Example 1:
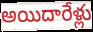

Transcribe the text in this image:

అయిదారేళ్లు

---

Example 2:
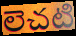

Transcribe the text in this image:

లెచటి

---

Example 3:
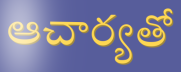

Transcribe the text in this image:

ఆచార్యతో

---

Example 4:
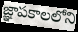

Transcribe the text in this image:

జ్ఞాపకాలలోని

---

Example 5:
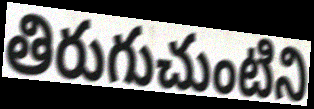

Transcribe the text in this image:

తిరుగుచుంటిని